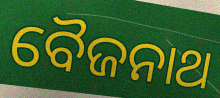
ବୈଜନାଥ